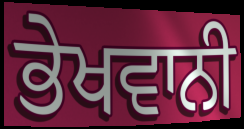
ਭੇਖਵਾਨੀ